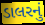
ડાલરનું